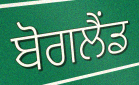
ਬੋਗਲੈਂਡ